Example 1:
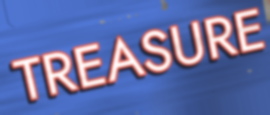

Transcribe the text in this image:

TREASURE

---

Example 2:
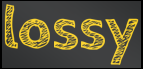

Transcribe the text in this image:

lossy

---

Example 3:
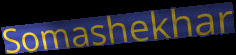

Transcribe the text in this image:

Somashekhar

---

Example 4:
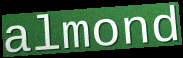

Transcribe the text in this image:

almond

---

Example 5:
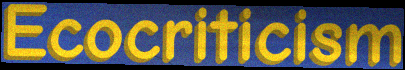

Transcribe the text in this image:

Ecocriticism